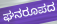
ಘನರೂಪದ